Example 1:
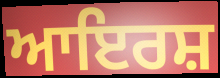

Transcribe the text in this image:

ਆਇਰਸ਼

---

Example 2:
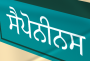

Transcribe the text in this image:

ਸੈਪੋਨੀਨਸ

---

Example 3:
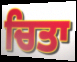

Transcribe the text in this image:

ਚਿਤਾ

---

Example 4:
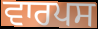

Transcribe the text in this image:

ਵਾਰਪਸ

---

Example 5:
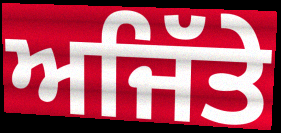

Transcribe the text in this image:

ਅਜਿੱਤੇ